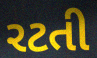
રટતી